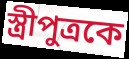
স্ত্রীপুত্রকে